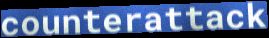
counterattack